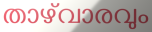
താഴ്‌വാരവും